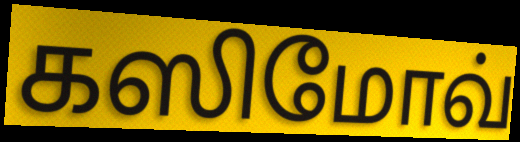
கஸிமோவ்